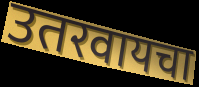
उतरवायचा